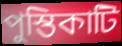
পুস্তিকাটি